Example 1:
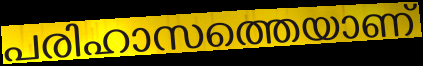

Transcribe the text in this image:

പരിഹാസത്തെയാണ്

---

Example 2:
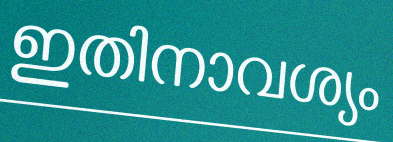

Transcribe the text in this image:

ഇതിനാവശ്യം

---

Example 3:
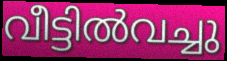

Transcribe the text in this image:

വീട്ടിൽവച്ചു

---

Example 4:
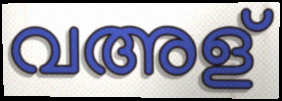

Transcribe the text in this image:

വഅള്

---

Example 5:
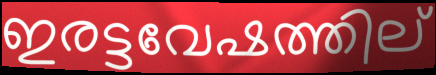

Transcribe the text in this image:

ഇരട്ടവേഷത്തില്